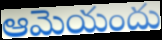
ఆమెయందు